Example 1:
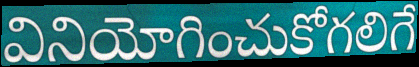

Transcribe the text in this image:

వినియోగించుకోగలిగే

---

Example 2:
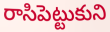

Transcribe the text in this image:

రాసిపెట్టుకుని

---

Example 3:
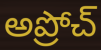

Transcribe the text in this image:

అప్రోచ్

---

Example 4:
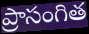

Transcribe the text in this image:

ప్రాసంగిత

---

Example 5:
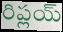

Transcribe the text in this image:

రిప్లయ్